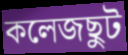
কলেজছুট